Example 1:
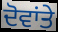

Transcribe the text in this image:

ਦੋਵਾਂਤੇ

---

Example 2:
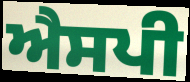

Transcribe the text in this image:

ਐਸਪੀ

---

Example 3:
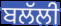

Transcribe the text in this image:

ਬਲੱਲੀ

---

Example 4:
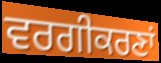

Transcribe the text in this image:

ਵਰਗੀਕਰਣਾਂ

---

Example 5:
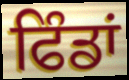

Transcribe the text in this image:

ਫਿੰਡਾਂ